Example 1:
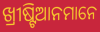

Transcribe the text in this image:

ଖ୍ରୀଷ୍ଟିଆନମାନେ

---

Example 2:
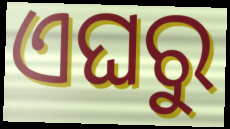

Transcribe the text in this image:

ଏଘରୁ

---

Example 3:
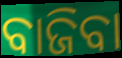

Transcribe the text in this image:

ବାଜିବା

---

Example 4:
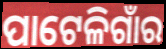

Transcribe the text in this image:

ପାଟେଳିଗାଁର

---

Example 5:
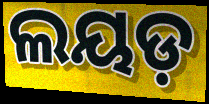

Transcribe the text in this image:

ଲୟଡ଼